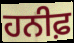
ਹਨੀਫ਼